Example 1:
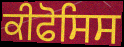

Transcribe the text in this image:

ਕੀਫੋਸਿਸ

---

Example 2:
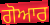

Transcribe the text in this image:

ਗੋਆਰ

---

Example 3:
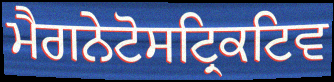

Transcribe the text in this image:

ਮੈਗਨੇਟੋਸਟ੍ਰਿਕਟਿਵ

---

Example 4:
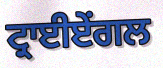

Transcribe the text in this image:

ਟ੍ਰਾਈਏਂਗਲ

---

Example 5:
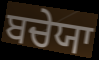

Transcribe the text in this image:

ਬਚੇਯਾ